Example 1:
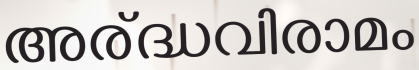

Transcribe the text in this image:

അര്ദ്ധവിരാമം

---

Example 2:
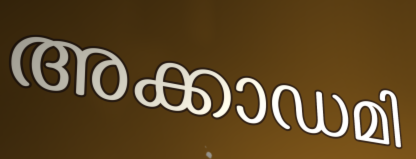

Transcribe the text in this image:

അക്കാഡമി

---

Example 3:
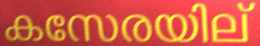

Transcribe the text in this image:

കസേരയില്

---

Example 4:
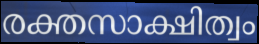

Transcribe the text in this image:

രക്തസാക്ഷിത്വം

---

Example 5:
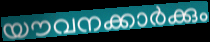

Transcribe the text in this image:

യൗവനക്കാർക്കും